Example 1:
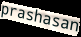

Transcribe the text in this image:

prashasan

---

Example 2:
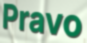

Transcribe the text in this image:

Pravo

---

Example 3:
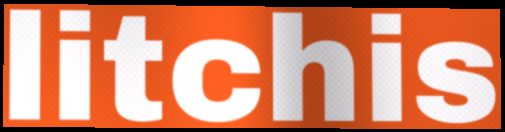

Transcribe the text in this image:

litchis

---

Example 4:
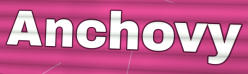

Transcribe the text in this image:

Anchovy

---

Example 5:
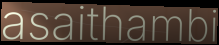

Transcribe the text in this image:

asaithambi